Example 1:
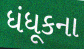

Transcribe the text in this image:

ધંધૂકના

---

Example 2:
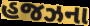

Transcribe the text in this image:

હજઝના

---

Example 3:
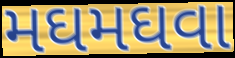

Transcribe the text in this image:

મઘમઘવા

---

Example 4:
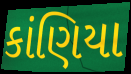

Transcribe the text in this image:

કાંણિયા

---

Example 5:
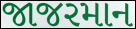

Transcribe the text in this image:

જાજરમાન